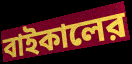
বাইকালের